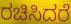
ರಚಿಸಿದರೆ